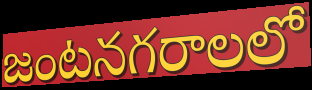
జంటనగరాలలో